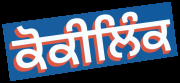
ਕੋਕੀਲਿੰਕ